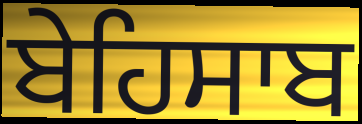
ਬੇਹਿਸਾਬ